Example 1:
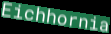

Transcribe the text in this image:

Eichhornia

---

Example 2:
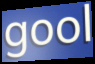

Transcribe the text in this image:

gool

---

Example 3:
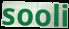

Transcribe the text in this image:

sooli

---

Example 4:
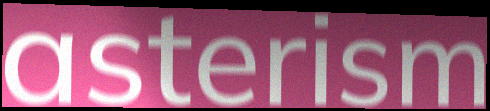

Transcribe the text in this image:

asterism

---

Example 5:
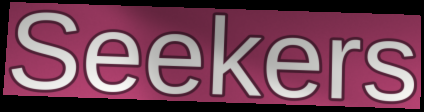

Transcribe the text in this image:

Seekers